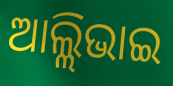
ଆଲ୍ଲିଭାଇ